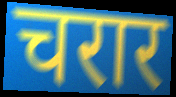
चरार